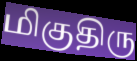
மிகுதிரு